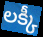
లక్కీ